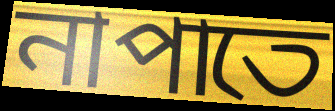
নাপাতে